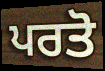
ਪਰਤੋ